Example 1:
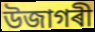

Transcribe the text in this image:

উজাগৰী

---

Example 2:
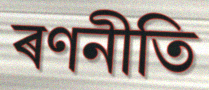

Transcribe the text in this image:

ৰণনীতি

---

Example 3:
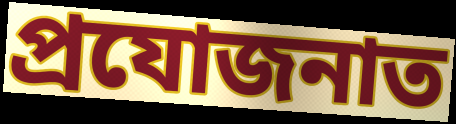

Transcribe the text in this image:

প্ৰযোজনাত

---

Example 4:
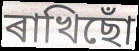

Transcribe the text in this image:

ৰাখিছোঁ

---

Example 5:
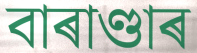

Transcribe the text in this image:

বাৰাণ্ডাৰ